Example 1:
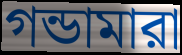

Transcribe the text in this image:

গন্ডামারা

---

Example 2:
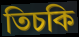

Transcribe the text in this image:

তিচকি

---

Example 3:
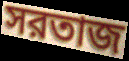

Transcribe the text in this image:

সরতাজ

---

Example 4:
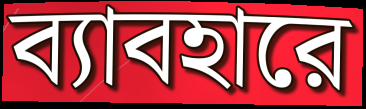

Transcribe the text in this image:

ব্যাবহারে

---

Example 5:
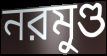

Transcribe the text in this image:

নরমুণ্ড